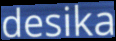
desika